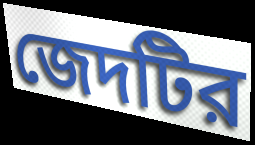
জেদটির